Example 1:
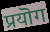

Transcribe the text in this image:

प्रयॊग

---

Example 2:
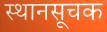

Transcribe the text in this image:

स्थानसूचक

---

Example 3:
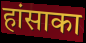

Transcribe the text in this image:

हांसाका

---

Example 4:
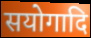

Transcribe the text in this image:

सयोगादि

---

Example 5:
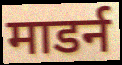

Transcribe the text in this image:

माडर्न